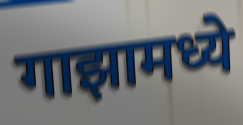
गाझामध्ये